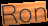
Ron